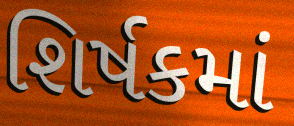
શિર્ષકમાં